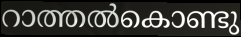
റാത്തൽകൊണ്ടു